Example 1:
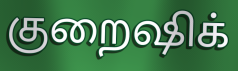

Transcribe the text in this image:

குறைஷிக்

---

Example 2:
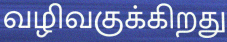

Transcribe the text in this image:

வழிவகுக்கிறது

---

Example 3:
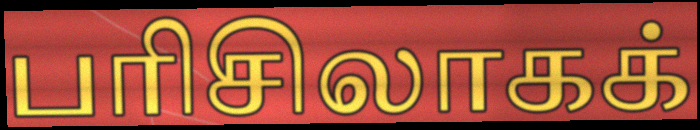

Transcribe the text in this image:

பரிசிலாகக்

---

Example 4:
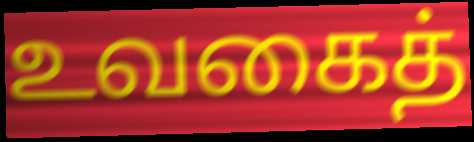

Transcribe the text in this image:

உவகைத்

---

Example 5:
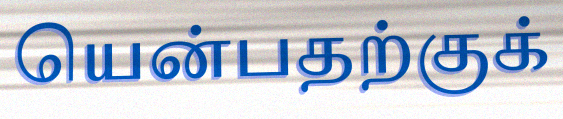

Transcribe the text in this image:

யென்பதற்குக்